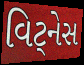
વિટ્નેસ